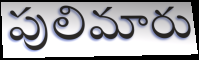
పులిమారు